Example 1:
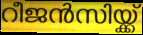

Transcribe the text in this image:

റീജൻസിയ്ക്ക്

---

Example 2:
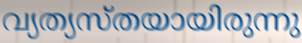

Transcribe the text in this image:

വ്യത്യസ്തയായിരുന്നു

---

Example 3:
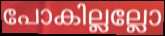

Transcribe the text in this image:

പോകില്ലല്ലോ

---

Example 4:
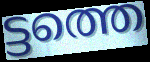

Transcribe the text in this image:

ട്ടത്തെ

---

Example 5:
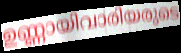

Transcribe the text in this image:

ഉണ്ണായിവാരിയരുടെ